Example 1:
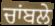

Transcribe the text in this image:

ਚਾਂਬਲੇ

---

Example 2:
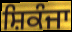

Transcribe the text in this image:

ਸ਼ਿਕੰਜਾ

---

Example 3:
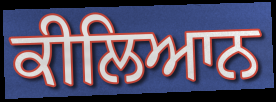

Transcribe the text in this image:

ਕੀਲਿਆਨ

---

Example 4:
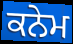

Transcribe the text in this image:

ਕਨੇਮ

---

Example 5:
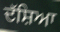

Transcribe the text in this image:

ਦੱਸ਼ਿਆ